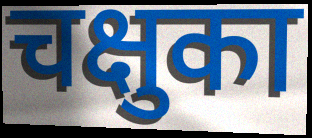
चक्षुका